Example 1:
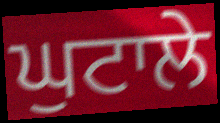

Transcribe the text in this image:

ਘੁਟਾਲੇ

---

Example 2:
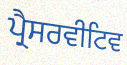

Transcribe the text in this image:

ਪ੍ਰੈਸਰਵੀਟਿਵ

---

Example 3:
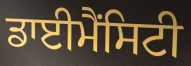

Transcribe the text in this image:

ਡਾਈਮੈਂਸਿਟੀ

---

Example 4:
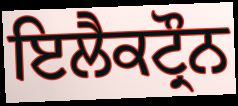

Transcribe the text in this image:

ਇਲੈਕਟ੍ਰੌਨ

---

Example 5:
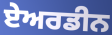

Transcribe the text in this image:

ਏਅਰਡੀਨ